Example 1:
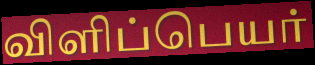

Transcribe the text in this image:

விளிப்பெயர்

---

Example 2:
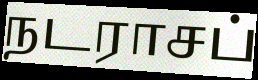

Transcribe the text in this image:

நடராசப்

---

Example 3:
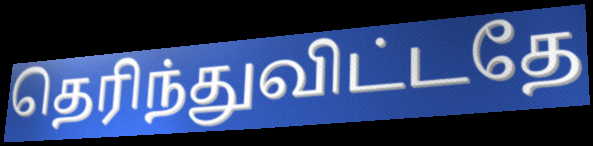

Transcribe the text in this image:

தெரிந்துவிட்டதே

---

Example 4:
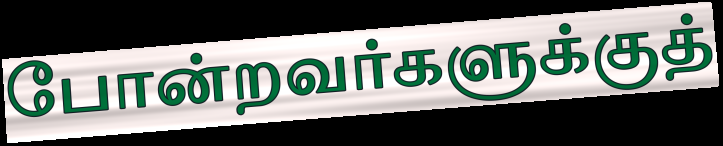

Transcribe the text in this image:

போன்றவர்களுக்குத்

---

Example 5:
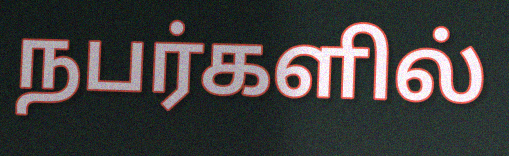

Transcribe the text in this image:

நபர்களில்